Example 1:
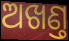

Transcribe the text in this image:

ଅଖଣ୍ତ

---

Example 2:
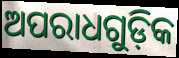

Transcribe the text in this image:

ଅପରାଧଗୁଡ଼ିକ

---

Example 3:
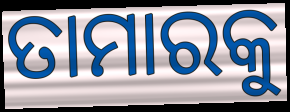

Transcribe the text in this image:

ତାମାରକୁ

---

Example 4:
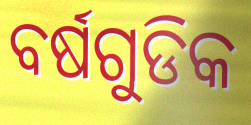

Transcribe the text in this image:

ବର୍ଷଗୁଡିକ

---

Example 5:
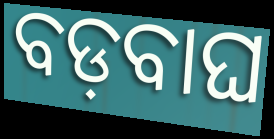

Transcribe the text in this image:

ବଡ଼ବାଘ